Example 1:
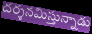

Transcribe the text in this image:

దర్శనమిస్తున్నాడు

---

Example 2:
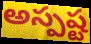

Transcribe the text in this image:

అస్పష్ట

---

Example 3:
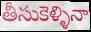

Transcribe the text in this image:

తీసుకెళ్ళినా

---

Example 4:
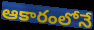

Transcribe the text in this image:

ఆకారంలోనే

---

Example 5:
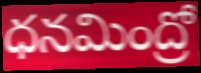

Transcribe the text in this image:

ధనమింద్రో